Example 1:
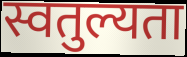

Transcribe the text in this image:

स्वतुल्यता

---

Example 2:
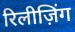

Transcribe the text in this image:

रिलीज़िंग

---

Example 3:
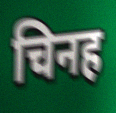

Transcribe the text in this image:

चिनह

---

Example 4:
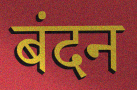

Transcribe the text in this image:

बंदन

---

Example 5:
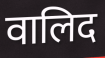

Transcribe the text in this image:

वालिद